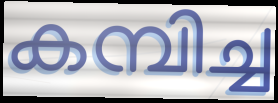
കമ്പിച്ച